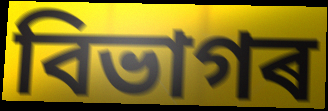
বিভাগৰ